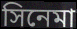
সিনেমা